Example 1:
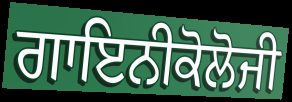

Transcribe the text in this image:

ਗਾਇਨੀਕੋਲੋਜੀ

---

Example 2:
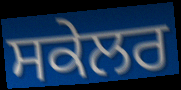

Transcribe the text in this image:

ਸਕੇਲਰ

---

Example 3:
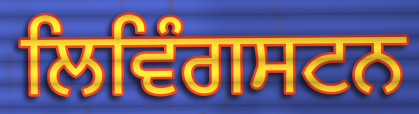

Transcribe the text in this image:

ਲਿਵਿੰਗਸਟਨ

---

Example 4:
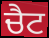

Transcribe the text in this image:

ਚੈਟ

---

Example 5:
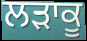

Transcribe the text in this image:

ਲੜਾਕੂ